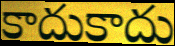
కాదుకాదు